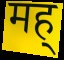
मह्